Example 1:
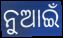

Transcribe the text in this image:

ନୁଆଇଁ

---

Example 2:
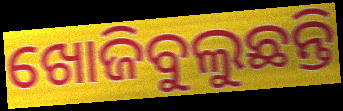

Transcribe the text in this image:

ଖୋଜିବୁଲୁଛନ୍ତି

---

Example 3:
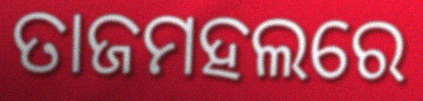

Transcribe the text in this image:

ତାଜମହଲରେ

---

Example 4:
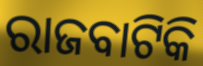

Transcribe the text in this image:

ରାଜବାଟିକି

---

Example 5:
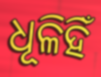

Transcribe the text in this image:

ଧୂଳିହିଁ